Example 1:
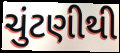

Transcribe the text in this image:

ચુંટણીથી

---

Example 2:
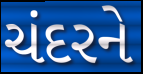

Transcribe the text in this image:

ચંદરને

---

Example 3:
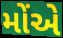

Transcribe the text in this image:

મોંએ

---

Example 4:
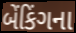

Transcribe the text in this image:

બેંકિંગના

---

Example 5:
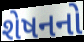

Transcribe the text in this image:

શેષનનો